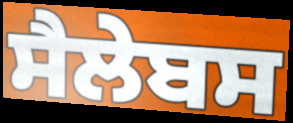
ਸੈਲੇਬਸ